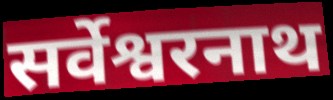
सर्वेश्वरनाथ